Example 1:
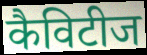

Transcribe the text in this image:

कैविटीज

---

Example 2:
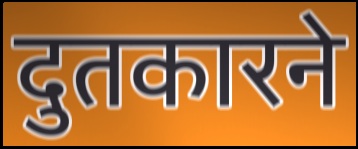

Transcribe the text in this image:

दुतकारने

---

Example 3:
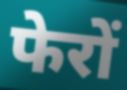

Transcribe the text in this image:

फेरों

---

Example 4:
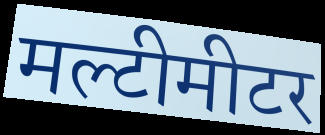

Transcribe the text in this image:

मल्टीमीटर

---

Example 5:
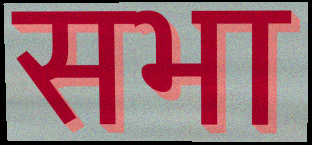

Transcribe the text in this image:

सभा